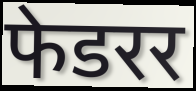
फेडरर